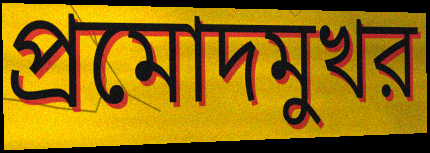
প্রমোদমুখর